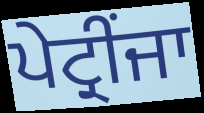
ਪੇਟ੍ਰੀਂਜਾ